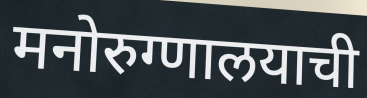
मनोरुग्णालयाची